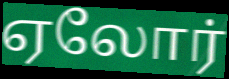
ஏலோர்